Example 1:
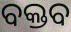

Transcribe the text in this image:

ବକ୍ତବ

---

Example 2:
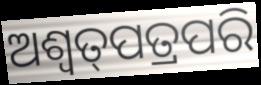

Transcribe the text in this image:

ଅଶ୍ଵତ୍‌ପତ୍ରପରି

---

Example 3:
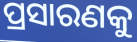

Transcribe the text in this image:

ପ୍ରସାରଣକୁ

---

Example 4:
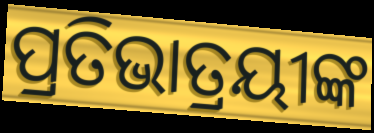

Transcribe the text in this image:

ପ୍ରତିଭାତ୍ରୟୀଙ୍କ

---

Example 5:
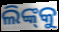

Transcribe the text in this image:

ଲିଙ୍କ୍‌କୁ